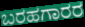
ಬರಹಗಾರರ